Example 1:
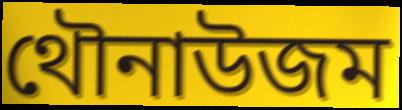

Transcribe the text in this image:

থৌনাউজম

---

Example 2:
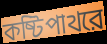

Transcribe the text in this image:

কষ্টিপাথরে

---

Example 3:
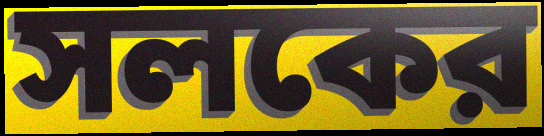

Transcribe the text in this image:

সলকের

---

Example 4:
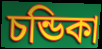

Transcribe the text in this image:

চন্ডিকা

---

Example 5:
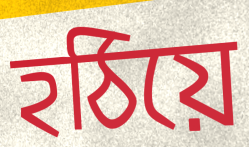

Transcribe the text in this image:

হঠিয়ে